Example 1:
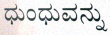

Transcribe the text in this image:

ಧುಂಧುವನ್ನು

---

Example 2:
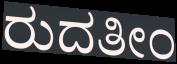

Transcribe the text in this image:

ರುದತೀಂ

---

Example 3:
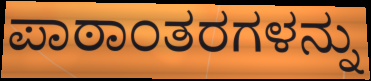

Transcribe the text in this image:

ಪಾಠಾಂತರಗಳನ್ನು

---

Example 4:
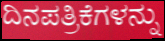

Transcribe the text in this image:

ದಿನಪತ್ರಿಕೆಗಳನ್ನು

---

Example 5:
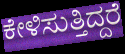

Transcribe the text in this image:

ಕೇಳಿಸುತ್ತಿದ್ದರೆ